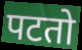
पटतो